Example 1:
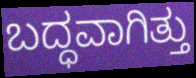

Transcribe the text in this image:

ಬದ್ಧವಾಗಿತ್ತು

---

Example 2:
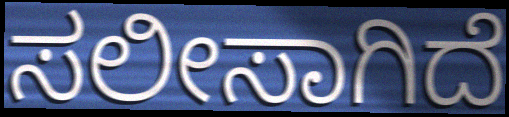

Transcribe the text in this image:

ಸಲೀಸಾಗಿದೆ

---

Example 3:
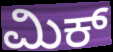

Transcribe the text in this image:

ಮಿಕ್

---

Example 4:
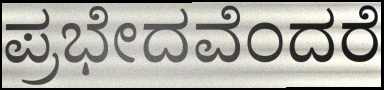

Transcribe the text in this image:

ಪ್ರಭೇದವೆಂದರೆ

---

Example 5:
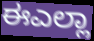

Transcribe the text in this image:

ಈಎಲ್ಲಾ